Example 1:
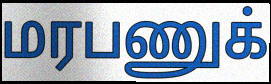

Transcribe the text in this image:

மரபணுக்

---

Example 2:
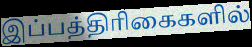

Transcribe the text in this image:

இப்பத்திரிகைகளில்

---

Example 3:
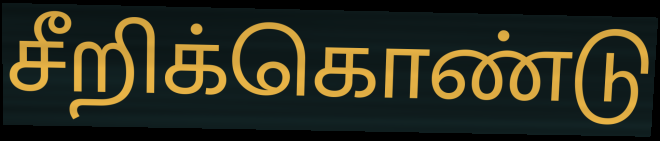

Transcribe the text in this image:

சீறிக்கொண்டு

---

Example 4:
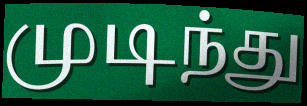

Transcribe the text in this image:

முடிந்து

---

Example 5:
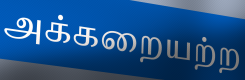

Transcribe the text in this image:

அக்கறையற்ற